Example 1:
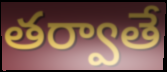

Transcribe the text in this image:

తర్వాతే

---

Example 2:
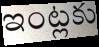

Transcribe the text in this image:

ఇంట్లకు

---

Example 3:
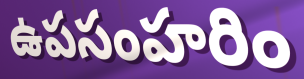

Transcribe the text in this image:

ఉపసంహరిం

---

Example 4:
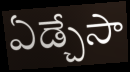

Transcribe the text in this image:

ఏడ్చేసా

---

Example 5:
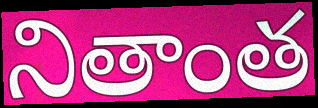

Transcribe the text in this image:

నితాంత